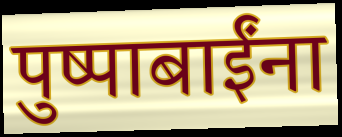
पुष्पाबाईंना